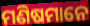
ମଣିଷମାନେ